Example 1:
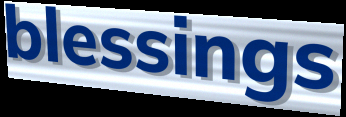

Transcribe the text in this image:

blessings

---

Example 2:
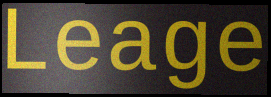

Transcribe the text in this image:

Leage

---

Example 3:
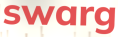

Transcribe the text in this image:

swarg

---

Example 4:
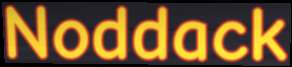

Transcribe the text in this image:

Noddack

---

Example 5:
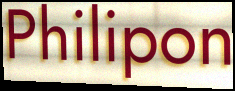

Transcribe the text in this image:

Philipon